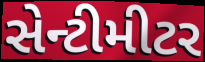
સેન્ટીમીટર